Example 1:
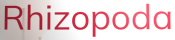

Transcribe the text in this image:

Rhizopoda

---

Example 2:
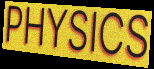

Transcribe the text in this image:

PHYSICS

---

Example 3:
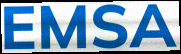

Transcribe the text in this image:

EMSA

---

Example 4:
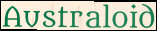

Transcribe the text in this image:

Australoid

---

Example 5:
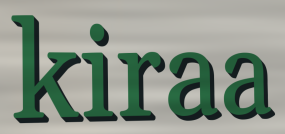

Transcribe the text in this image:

kiraa